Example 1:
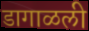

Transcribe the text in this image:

डागाळली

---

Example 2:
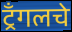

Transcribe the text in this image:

ट्रँगलचे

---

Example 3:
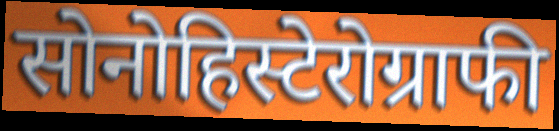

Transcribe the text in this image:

सोनोहिस्टेरोग्राफी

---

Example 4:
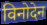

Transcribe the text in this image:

विनोदेन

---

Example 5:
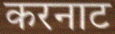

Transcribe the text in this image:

करनाट